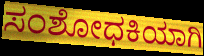
ಸಂಶೋಧಕಿಯಾಗಿ